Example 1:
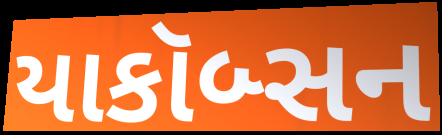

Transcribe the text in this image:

યાકૉબ્સન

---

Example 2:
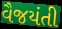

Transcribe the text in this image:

વૈજયંતી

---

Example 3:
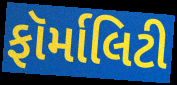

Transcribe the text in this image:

ફૉર્માલિટી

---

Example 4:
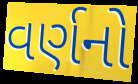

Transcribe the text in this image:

વર્ણનો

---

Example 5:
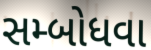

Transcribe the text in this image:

સમ્બોધવા